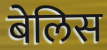
बेलिस